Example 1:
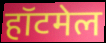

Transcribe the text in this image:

हॉटमेल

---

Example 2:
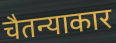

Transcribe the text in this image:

चैतन्याकार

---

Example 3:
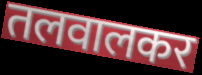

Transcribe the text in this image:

तलवालकर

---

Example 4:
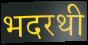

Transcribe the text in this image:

भदरथी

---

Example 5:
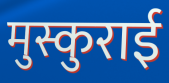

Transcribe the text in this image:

मुस्कुराई